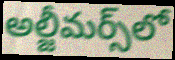
అల్జీమర్స్‌లో